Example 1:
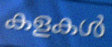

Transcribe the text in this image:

കളകൾ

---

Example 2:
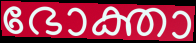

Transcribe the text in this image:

ഭോക്താ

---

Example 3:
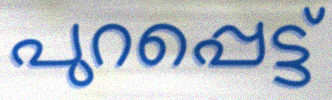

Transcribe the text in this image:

പുറപ്പെട്ട്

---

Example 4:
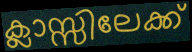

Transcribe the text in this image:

ക്ലാസ്സിലേക്ക്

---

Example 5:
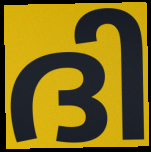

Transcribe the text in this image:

ദി